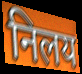
निलय